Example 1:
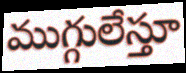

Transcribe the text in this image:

ముగ్గులేస్తూ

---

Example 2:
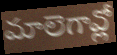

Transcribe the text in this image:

మాలెగావ్లో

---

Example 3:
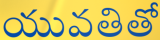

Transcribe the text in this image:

యువతితో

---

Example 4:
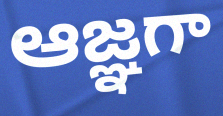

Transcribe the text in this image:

ఆజ్ఞగా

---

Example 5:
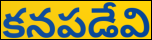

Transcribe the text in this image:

కనపడేవి